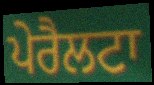
ਪੇਰੈਲਟਾ